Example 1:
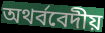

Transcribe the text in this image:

অথর্ববেদীয়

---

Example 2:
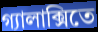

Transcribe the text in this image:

গ্যালাক্সিতে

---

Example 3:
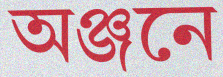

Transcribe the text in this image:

অঞ্জনে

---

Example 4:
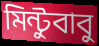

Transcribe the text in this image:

মিন্টুবাবু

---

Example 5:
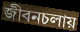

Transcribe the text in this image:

জীবনচলায়